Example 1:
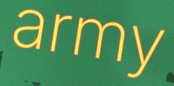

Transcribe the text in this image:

army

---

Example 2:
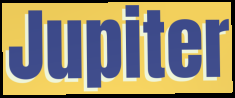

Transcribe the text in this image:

Jupiter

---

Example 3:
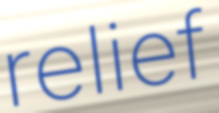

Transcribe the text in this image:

relief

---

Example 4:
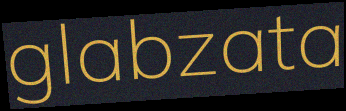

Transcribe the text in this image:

glabzata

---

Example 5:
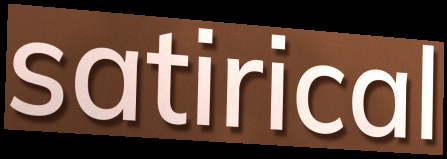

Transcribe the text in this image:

satirical